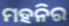
ମହନିର